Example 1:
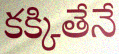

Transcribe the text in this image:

కక్కితేనే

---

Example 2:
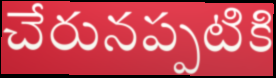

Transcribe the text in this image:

చేరునప్పటికి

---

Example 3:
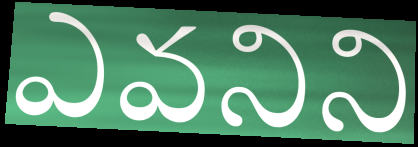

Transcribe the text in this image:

ఎవనిని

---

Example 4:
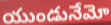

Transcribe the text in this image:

యుండునేమో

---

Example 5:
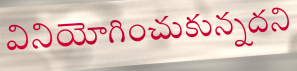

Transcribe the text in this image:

వినియోగించుకున్నదని